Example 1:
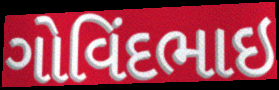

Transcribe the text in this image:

ગોવિંદભાઇ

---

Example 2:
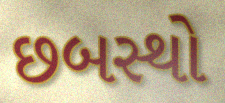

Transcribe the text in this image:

છબસ્થો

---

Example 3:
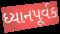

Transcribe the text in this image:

ધ્યાનપૂર્વક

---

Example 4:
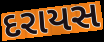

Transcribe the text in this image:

દરાયસ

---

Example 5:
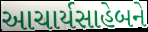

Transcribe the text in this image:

આચાર્યસાહેબને